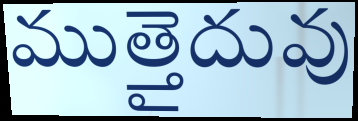
ముత్తైదువు